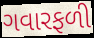
ગવારફળી